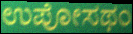
ಉಪೋಸಥಂ